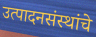
उत्पादनसंस्थांचे